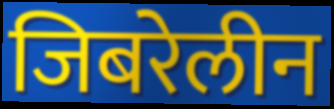
जिबरेलीन